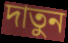
দাতুন